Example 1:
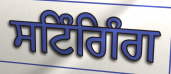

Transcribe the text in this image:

ਸਟਿੰਗਿੰਗ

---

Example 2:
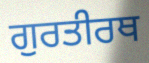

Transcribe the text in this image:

ਗੁਰਤੀਰਥ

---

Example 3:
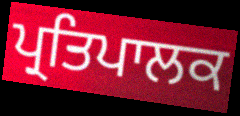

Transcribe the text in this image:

ਪ੍ਰਤਿਪਾਲਕ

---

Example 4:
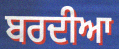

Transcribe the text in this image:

ਬਰਦੀਆ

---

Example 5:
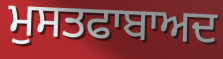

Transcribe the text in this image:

ਮੁਸਤਫਾਬਾਅਦ